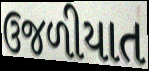
ઉજળીયાત